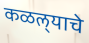
कळल्याचे